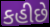
કહીછે